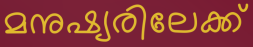
മനുഷ്യരിലേക്ക്